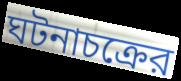
ঘটনাচক্রের